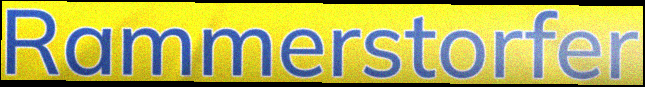
Rammerstorfer